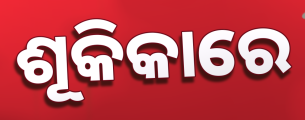
ଶୂକିକାରେ